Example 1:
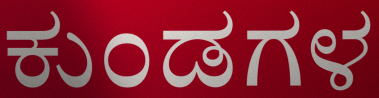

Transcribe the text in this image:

ಕುಂಡಗಳ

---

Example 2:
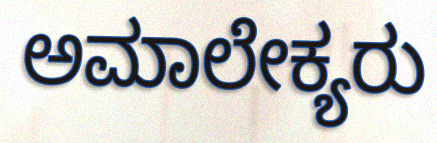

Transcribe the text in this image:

ಅಮಾಲೇಕ್ಯರು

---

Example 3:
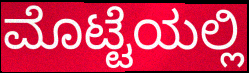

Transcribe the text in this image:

ಮೊಟ್ಟೆಯಲ್ಲಿ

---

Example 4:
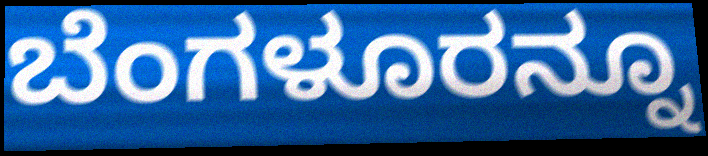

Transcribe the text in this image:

ಬೆಂಗಳೂರನ್ನೂ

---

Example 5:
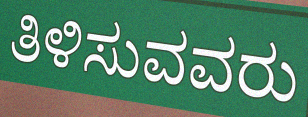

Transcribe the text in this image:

ತಿಳಿಸುವವರು